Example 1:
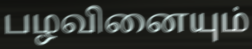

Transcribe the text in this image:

பழவினையும்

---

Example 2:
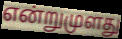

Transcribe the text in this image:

என்றுமுளது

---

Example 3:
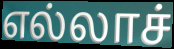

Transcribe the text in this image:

எல்லாச்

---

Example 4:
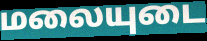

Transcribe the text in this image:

மலையுடை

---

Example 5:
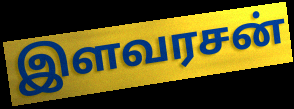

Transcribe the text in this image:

இளவரசன்